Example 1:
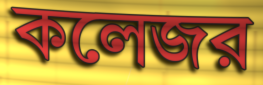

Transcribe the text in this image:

কলেজর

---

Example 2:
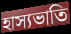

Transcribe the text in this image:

হাস্যভাতি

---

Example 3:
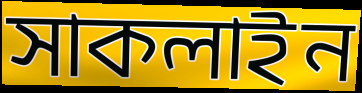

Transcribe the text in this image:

সাকলাইন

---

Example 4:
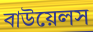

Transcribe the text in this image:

বাউয়েলস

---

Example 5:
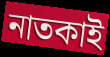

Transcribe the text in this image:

নাতকাই